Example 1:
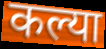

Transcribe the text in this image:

कल्या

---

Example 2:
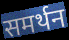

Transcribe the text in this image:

समर्थन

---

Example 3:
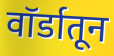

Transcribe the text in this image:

वॉर्डातून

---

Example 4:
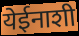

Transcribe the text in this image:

येईनाशी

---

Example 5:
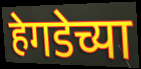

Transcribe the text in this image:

हेगडेच्या